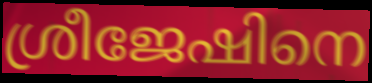
ശ്രീജേഷിനെ